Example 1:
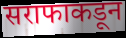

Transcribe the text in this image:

सराफाकडून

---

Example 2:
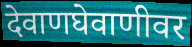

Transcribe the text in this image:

देवाणघेवाणीवर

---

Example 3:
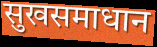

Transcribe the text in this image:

सुखसमाधान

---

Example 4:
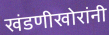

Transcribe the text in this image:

खंडणीखोरांनी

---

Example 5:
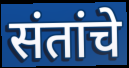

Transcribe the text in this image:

संतांचे